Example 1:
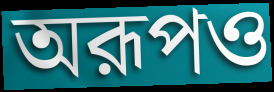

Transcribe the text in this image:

অরূপও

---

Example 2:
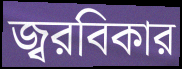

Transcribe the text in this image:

জ্বরবিকার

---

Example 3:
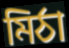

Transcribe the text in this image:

মিঠা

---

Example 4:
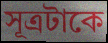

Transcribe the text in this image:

সূত্রটাকে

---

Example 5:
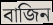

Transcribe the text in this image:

বাজিন